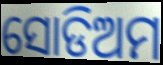
ସୋଡିଅମ